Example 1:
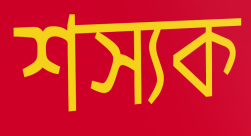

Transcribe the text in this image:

শস্যক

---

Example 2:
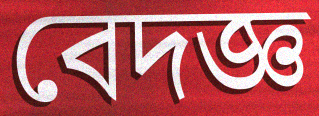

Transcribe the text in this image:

বেদজ্ঞ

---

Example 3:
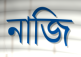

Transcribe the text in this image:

নাজি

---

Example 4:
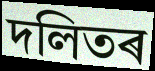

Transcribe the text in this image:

দলিতৰ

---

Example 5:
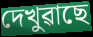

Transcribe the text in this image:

দেখুৱাছে